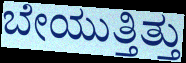
ಬೇಯುತ್ತಿತ್ತು